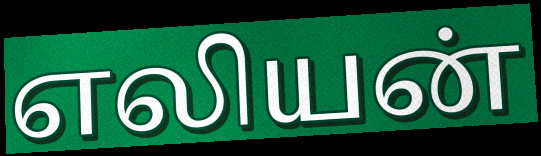
எலியன்